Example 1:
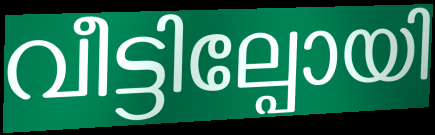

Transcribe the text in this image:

വീട്ടില്പോയി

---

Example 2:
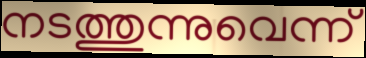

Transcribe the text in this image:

നടത്തുന്നുവെന്ന്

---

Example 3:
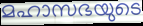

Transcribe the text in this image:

മഹാസഭയുടെ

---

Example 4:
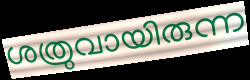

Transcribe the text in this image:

ശത്രുവായിരുന്ന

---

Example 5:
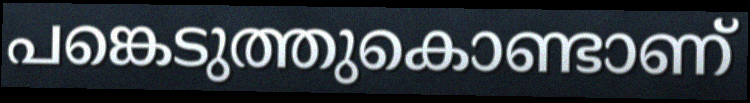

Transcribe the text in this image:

പങ്കെടുത്തുകൊണ്ടാണ്